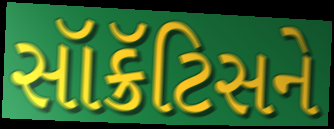
સૉક્રૅટિસને